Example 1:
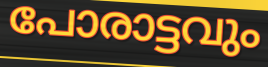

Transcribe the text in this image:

പോരാട്ടവും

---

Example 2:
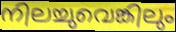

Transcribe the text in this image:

നിലച്ചുവെങ്കിലും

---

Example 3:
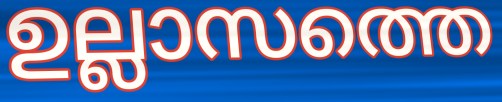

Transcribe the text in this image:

ഉല്ലാസത്തെ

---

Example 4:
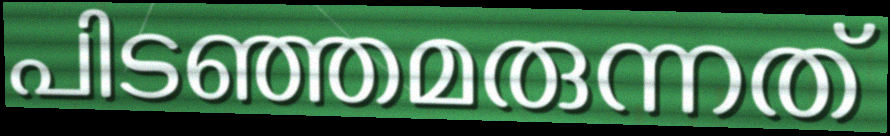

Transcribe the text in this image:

പിടഞ്ഞമരുന്നത്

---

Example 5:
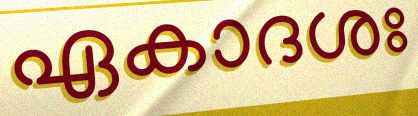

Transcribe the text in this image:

ഏകാദശഃ